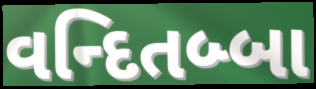
વન્દિતબ્બા